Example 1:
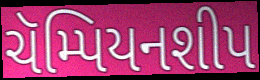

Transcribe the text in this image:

ચૅમ્પિયનશીપ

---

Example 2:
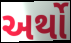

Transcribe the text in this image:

અર્થો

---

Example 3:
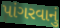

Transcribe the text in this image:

પાંગરવાનું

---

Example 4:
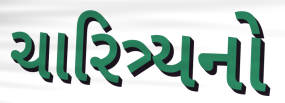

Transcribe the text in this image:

ચારિત્ર્યનો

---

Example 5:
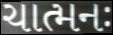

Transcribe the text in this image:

ચાત્મનઃ